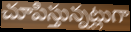
చూపిస్తున్నట్లుగా